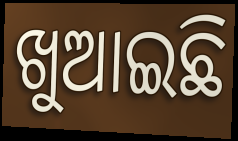
ଖୁଆଇଛି